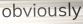
obviously